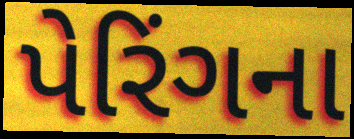
પેરિંગના